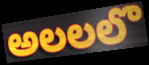
అలలలొ